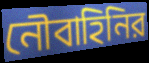
নৌবাহিনির